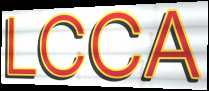
LCCA